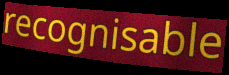
recognisable